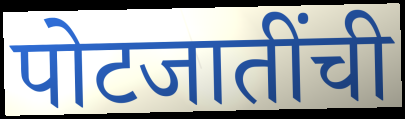
पोटजातींची